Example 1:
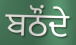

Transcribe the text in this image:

ਬਠੌਂਦੇ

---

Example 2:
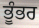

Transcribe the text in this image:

ਭੂੰਭਰ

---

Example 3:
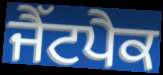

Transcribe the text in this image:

ਜੈੱਟਪੈਕ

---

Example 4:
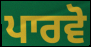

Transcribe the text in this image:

ਪਾਰਵੋ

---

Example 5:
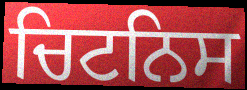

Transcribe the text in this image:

ਚਿਟਨਿਸ